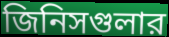
জিনিসগুলার